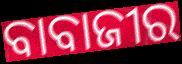
ବାବାଜୀର